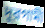
দূরগামী